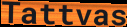
Tattvas